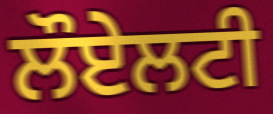
ਲੌਏਲਟੀ